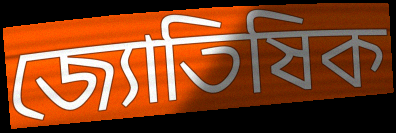
জ্যোতিষিক